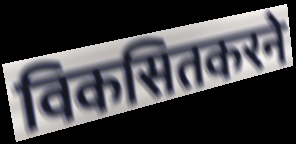
विकसितकरने